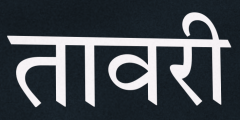
तावरी